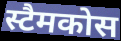
स्टैमकोस